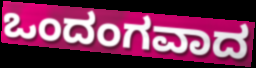
ಒಂದಂಗವಾದ